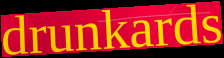
drunkards